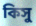
কিসু